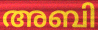
അബി